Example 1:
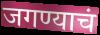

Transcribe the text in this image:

जगण्याचं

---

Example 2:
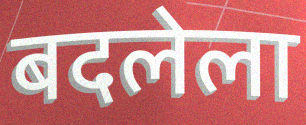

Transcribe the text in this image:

बदलेला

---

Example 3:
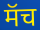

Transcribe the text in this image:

मॅच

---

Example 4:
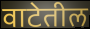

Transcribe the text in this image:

वाटेतील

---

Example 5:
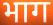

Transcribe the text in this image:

भाग